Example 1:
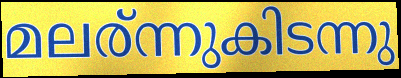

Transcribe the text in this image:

മലര്ന്നുകിടന്നു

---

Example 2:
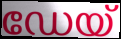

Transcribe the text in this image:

ഡേയ്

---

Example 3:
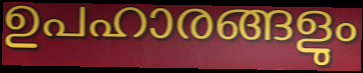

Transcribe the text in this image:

ഉപഹാരങ്ങളും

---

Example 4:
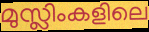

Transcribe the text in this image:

മുസ്ലിംകളിലെ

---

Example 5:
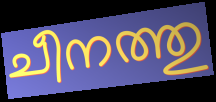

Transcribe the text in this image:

ചീനത്തു